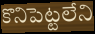
కొనిపెట్టలేని